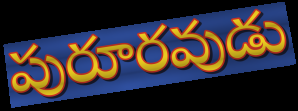
పురూరవుడు